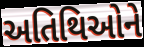
અતિથિઓને